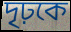
দৃঢ়কে